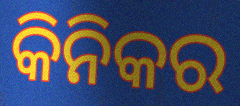
କିନିକର